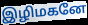
இழிமகனே